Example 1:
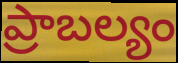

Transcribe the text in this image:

ప్రాబల్యం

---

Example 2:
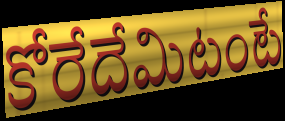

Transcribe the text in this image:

కోరేదేమిటంటే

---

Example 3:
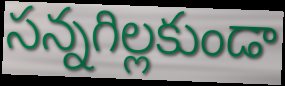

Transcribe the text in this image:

సన్నగిల్లకుండా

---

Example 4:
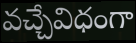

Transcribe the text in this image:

వచ్చేవిధంగా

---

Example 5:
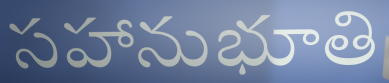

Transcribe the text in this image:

సహానుభూతి